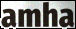
amha